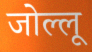
जोल्लू